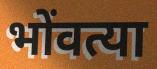
भोंवत्या